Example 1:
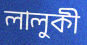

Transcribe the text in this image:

লালুকী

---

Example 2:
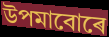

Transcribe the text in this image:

উপমাবোৰে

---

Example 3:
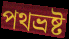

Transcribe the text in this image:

পথভ্ৰষ্ট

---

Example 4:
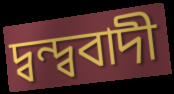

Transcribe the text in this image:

দ্বন্দ্ববাদী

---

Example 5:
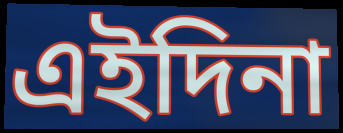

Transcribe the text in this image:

এইদিনা